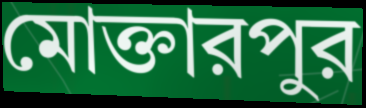
মোক্তারপুর